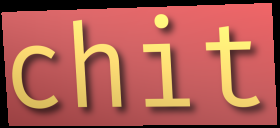
chit